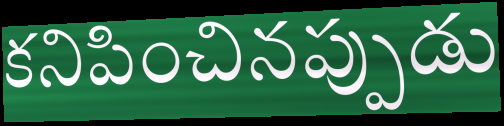
కనిపించినప్పుడు